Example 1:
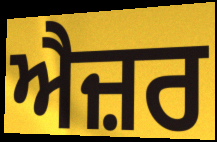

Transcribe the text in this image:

ਐਜ਼ਰ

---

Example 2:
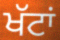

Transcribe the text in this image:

ਖੱਟਾਂ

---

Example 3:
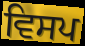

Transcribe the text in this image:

ਵਿਸਪ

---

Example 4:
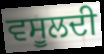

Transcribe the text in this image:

ਵਸੂਲਦੀ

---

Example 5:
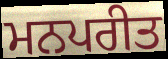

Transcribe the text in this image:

ਮਨਪਰੀਤ